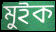
মুইক